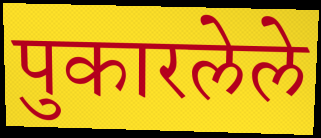
पुकारलेले